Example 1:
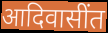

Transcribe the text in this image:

आदिवासींत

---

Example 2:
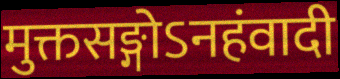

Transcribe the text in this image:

मुक्तसङ्गोऽनहंवादी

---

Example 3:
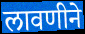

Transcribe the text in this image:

लावणीने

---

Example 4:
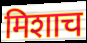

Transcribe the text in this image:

मिशाच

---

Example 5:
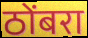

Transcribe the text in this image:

ठोंबरा